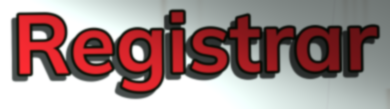
Registrar